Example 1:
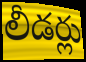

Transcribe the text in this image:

లీడర్లు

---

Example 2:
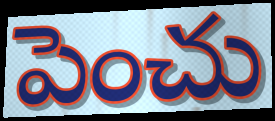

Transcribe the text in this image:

పెంచు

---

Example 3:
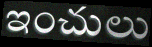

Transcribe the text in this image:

ఇంచులు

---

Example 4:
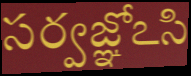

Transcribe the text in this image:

సర్వజ్ఞోఽసి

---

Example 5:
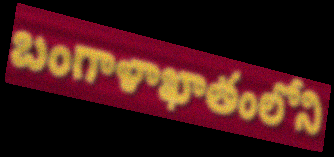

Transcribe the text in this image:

బంగాళాఖాతంలోని